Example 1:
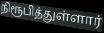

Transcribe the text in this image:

நிரூபித்துள்ளார்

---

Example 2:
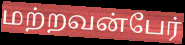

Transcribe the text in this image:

மற்றவன்பேர்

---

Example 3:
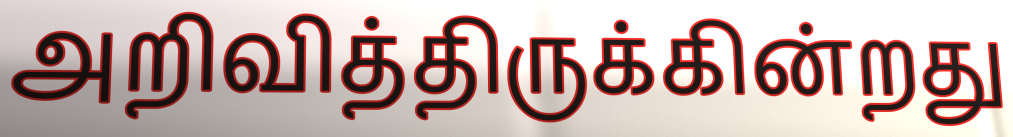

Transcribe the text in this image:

அறிவித்திருக்கின்றது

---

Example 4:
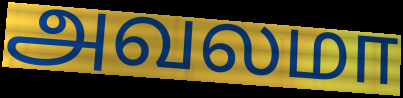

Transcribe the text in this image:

அவலமா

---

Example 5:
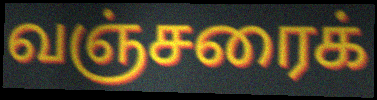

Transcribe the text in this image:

வஞ்சரைக்